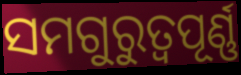
ସମଗୁରୁତ୍ଵପୂର୍ଣ୍ଣ